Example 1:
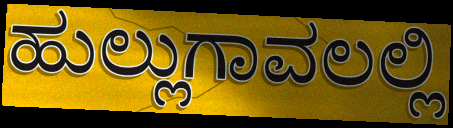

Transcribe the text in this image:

ಹುಲ್ಲುಗಾವಲಲ್ಲಿ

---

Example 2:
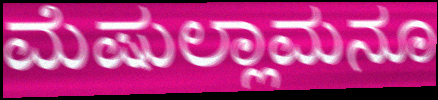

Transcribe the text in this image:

ಮೆಷುಲ್ಲಾಮನೂ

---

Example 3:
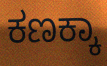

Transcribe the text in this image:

ಕಣಕ್ಕಾ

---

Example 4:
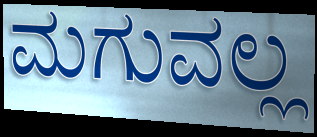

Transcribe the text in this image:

ಮಗುವಲ್ಲ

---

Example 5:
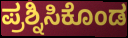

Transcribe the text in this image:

ಪ್ರಶ್ನಿಸಿಕೊಂಡ